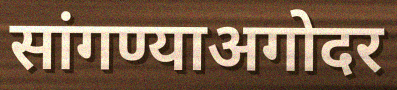
सांगण्याअगोदर